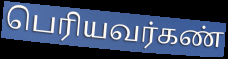
பெரியவர்கண்